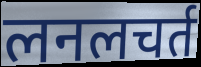
लनलचर्त